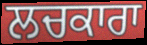
ਲਚਕਾਰਾ